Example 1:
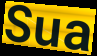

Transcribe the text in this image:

Sua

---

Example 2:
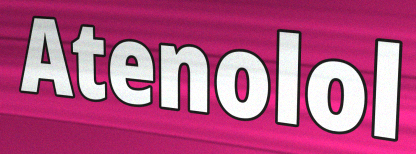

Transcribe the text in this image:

Atenolol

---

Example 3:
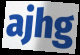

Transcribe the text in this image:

ajhg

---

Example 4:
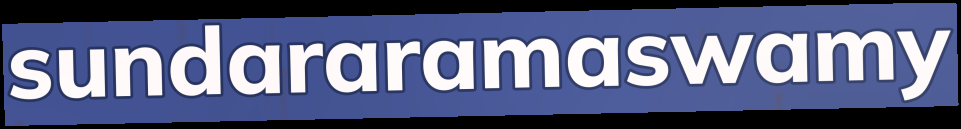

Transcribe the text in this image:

sundararamaswamy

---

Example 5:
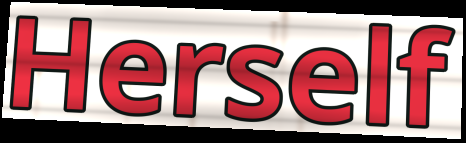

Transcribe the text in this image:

Herself